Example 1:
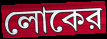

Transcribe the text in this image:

লোকের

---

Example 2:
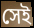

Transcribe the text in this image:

সেই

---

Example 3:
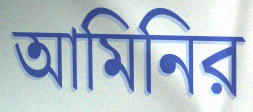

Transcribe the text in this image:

আমিনির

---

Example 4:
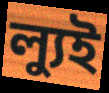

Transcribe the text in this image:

ল্যুই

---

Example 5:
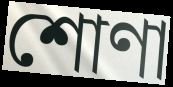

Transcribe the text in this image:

শোণা